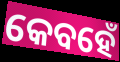
କେବହେଁ